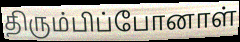
திரும்பிப்போனாள்